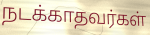
நடக்காதவர்கள்